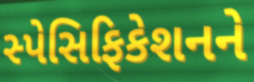
સ્પેસિફિકેશનને